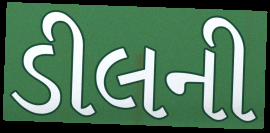
ડીલની